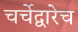
चर्चेद्वारेच